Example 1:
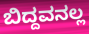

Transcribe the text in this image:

ಬಿದ್ದವನಲ್ಲ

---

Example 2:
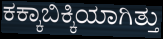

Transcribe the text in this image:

ಕಕ್ಕಾಬಿಕ್ಕಿಯಾಗಿತ್ತು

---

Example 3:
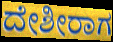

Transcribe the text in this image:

ದೇಶೀರಾಗ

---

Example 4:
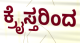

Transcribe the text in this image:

ಕ್ರೈಸ್ತರಿಂದ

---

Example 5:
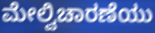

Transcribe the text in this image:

ಮೇಲ್ವಿಚಾರಣೆಯು